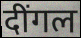
दींगल